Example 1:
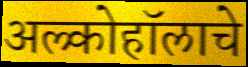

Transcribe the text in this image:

अल्कोहॉलाचे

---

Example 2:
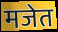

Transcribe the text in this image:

मजेत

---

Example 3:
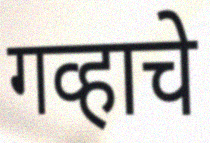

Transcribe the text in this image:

गव्हाचे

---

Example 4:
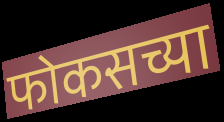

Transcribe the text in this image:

फोकसच्या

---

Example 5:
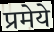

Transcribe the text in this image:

प्रमेये